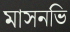
মাসনভি